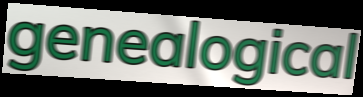
genealogical